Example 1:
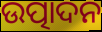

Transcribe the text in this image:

ଉତ୍ପାଦନ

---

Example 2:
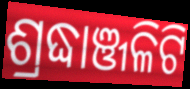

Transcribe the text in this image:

ଶ୍ରଦ୍ଧାଞ୍ଜଳିଟି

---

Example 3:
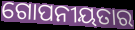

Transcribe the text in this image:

ଗୋପନୀୟତାର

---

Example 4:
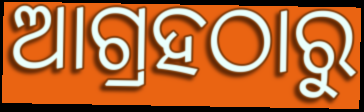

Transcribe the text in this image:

ଆଗ୍ରହଠାରୁ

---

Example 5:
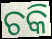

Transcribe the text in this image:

ଚକି